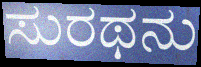
ಸುರಥನು